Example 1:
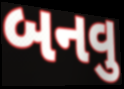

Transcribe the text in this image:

બનવુ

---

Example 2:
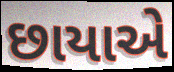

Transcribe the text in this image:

છાયાએ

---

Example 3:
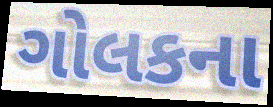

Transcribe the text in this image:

ગોલકના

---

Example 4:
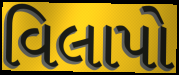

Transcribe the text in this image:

વિલાપો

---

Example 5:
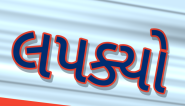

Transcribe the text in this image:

લપક્યો